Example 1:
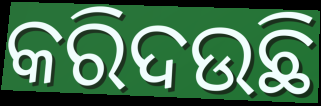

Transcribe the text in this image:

କରିଦଉଛି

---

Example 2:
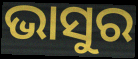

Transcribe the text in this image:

ଭାସୁର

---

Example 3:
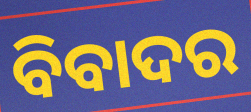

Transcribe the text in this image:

ବିବାଦର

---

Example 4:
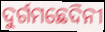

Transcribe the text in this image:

ଦୁର୍ଗମଛେଦିନୀ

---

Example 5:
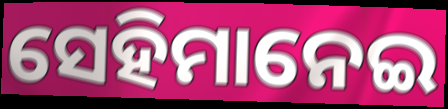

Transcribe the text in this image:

ସେହିମାନେଇ